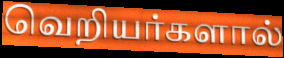
வெறியர்களால்